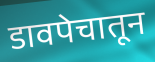
डावपेचातून